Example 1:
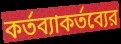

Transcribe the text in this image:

কর্তব্যাকর্তব্যের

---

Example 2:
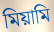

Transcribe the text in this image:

মিয়ামি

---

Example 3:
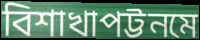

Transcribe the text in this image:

বিশাখাপট্টনমে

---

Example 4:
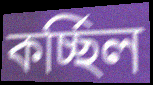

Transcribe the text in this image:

কর্চ্ছিল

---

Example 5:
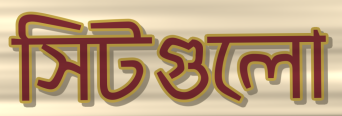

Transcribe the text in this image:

সিটগুলো